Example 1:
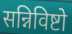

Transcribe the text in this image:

सन्निविष्टो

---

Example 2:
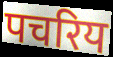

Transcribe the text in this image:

पचरिय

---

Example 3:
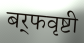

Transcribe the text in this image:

बर्फवृष्टी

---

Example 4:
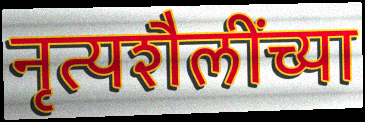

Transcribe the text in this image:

नृत्यशैलींच्या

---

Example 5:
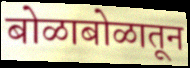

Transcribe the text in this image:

बोळाबोळातून